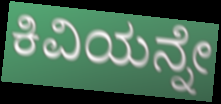
ಕಿವಿಯನ್ನೇ